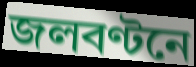
জলবণ্টনে